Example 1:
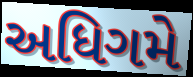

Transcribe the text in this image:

અધિગમે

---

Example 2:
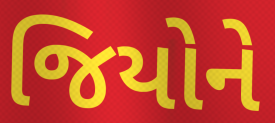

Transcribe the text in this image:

જિયોને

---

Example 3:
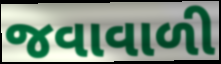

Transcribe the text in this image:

જવાવાળી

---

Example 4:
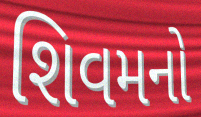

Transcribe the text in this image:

શિવમનો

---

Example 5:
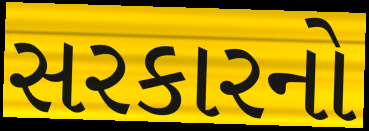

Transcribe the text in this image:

સરકારનો